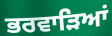
ਭਰਵਾੜਿਆਂ